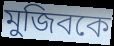
মুজিবকে